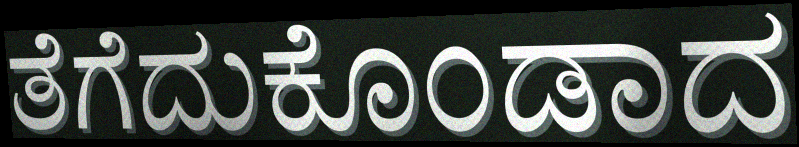
ತೆಗೆದುಕೊಂಡಾದ